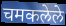
चमकलेले